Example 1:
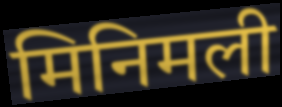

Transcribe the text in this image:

मिनिमली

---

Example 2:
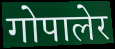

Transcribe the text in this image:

गोपालेर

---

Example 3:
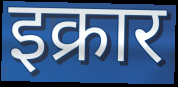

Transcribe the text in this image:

इक्रार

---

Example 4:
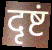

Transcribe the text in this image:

दृष्टं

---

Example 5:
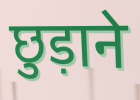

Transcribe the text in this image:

छुड़ाने